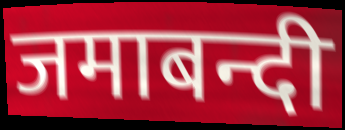
जमाबन्दी